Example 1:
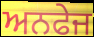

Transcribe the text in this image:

ਅਨਫੇਜ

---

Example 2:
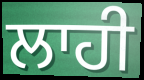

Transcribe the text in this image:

ਲਾਹੀ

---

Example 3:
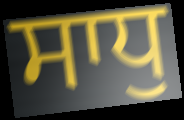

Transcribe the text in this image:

ਸਾਧੁ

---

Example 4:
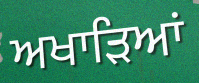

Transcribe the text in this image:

ਅਖਾੜਿਆਂ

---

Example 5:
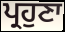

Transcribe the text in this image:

ਪ੍ਰਹੁਣਾ